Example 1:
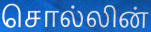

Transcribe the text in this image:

சொல்லின்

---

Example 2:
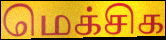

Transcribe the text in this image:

மெக்சிக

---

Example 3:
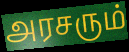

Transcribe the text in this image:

அரசரும்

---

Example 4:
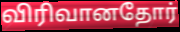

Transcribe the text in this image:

விரிவானதோர்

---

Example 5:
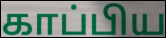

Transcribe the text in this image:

காப்பிய